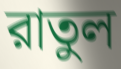
রাতুল